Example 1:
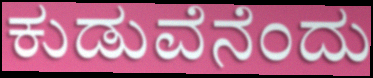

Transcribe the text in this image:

ಕುಡುವೆನೆಂದು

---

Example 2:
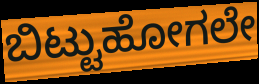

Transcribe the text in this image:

ಬಿಟ್ಟುಹೋಗಲೇ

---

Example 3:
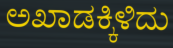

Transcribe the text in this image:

ಅಖಾಡಕ್ಕಿಳಿದು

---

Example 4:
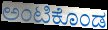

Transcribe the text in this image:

ಅಂಟಿಕೊಂಡ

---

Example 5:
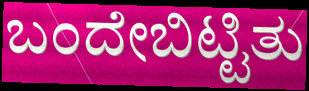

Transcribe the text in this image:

ಬಂದೇಬಿಟ್ಟಿತು